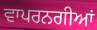
ਵਾਪਰਨਗੀਆਂ